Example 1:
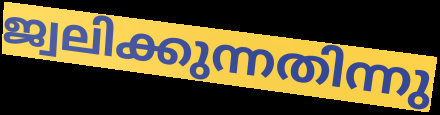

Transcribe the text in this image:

ജ്വലിക്കുന്നതിന്നു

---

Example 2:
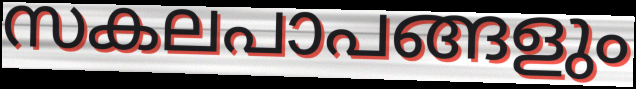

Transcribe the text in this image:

സകലപാപങ്ങളും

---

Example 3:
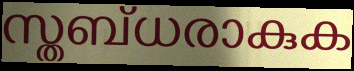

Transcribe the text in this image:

സ്തബ്ധരാകുക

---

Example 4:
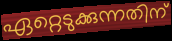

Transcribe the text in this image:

ഏറ്റെടുക്കുന്നതിന്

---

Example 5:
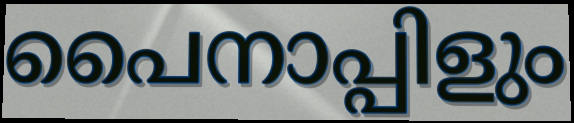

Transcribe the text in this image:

പൈനാപ്പിളും